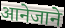
आनेजाने